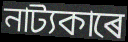
নাট্যকাৰে